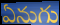
ఏనుగు